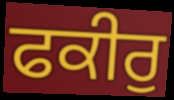
ਫਕੀਰੁ